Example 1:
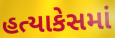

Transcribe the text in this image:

હત્યાકેસમાં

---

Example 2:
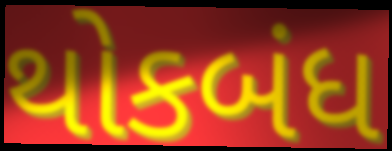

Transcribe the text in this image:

થોકબંધ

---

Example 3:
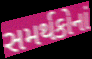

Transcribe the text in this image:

સમર્થકોનાં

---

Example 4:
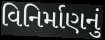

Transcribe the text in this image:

વિનિર્માણનું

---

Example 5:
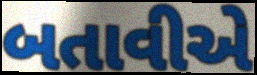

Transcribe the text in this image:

બતાવીએ